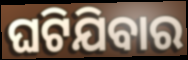
ଘଟିଯିବାର